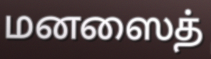
மனஸைத்